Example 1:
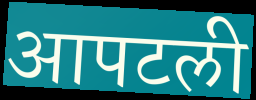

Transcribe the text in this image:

आपटली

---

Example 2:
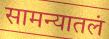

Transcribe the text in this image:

सामन्यातलं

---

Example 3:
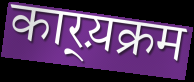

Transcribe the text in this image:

कार्य़क्रम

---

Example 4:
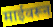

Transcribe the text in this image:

माईवरून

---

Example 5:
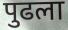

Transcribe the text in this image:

पुढला